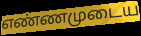
எண்ணமுடைய